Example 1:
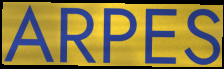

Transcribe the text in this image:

ARPES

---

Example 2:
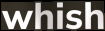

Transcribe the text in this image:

whish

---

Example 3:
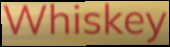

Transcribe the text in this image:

Whiskey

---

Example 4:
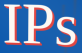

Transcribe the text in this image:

IPs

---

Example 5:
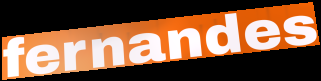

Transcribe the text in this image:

fernandes